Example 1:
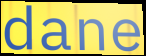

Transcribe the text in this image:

dane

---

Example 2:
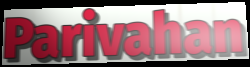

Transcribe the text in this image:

Parivahan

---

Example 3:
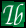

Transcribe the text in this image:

Ib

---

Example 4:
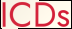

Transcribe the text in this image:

ICDs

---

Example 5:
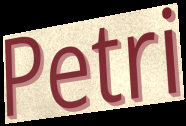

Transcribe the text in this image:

Petri